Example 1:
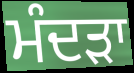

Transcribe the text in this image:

ਮੰਦੜਾ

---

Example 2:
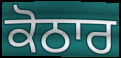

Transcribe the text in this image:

ਕੋਠਾਰ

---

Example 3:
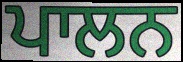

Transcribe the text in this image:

ਪਾਲਨ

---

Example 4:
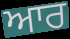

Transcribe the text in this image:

ਆਰ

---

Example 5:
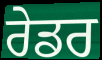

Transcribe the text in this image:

ਰੇਡਰ